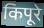
किपूरे